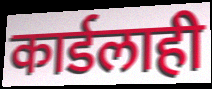
कार्डलाही